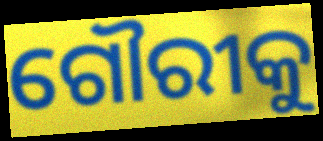
ଗୌରୀକୁ